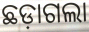
ଛଡ଼ାଗଲା